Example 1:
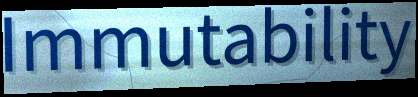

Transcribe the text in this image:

Immutability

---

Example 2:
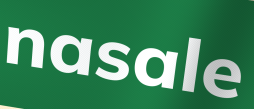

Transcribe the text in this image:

nasale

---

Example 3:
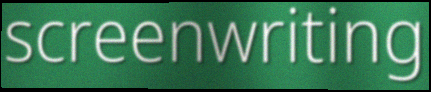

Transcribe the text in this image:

screenwriting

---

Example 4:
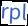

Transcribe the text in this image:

rpl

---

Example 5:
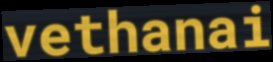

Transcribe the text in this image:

vethanai